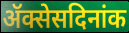
ॲक्सेसदिनांक